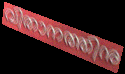
വിതാനത്തിനു